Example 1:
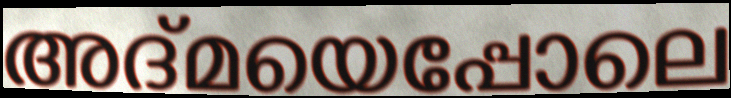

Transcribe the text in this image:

അദ്മയെപ്പോലെ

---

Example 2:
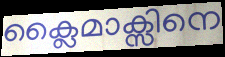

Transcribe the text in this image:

ക്ലൈമാക്സിനെ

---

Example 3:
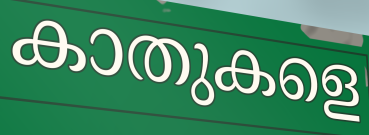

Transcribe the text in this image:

കാതുകളെ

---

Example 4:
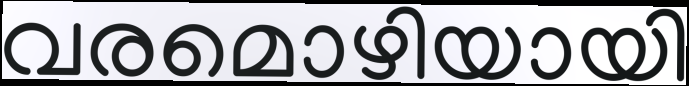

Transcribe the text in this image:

വരമൊഴിയായി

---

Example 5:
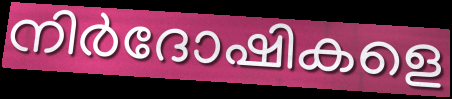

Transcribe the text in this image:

നിർദോഷികളെ